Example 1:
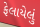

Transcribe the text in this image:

ફેલાયેલું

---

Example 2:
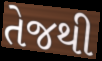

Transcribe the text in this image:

તેજથી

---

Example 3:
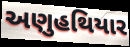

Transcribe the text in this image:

અણુહથિયાર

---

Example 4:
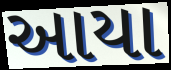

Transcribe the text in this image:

આયા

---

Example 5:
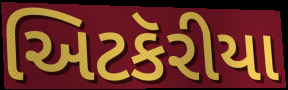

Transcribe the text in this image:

અિટકૅરીયા